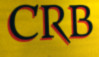
CRB